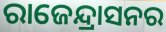
ରାଜେନ୍ଦ୍ରାସନର